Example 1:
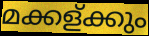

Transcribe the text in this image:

മക്കള്ക്കും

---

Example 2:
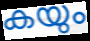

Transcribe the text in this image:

കയും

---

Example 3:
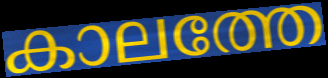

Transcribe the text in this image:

കാലത്തേ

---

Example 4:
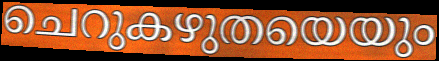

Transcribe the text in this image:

ചെറുകഴുതയെയും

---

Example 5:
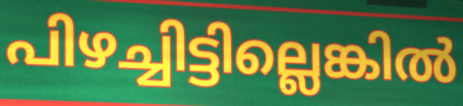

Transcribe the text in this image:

പിഴച്ചിട്ടില്ലെങ്കിൽ